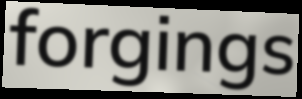
forgings